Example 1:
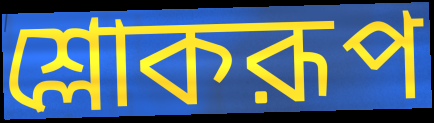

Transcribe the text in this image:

শ্লোকরূপ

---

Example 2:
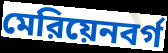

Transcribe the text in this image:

মেরিয়েনবর্গ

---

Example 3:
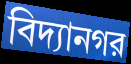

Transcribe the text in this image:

বিদ্যানগর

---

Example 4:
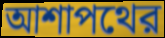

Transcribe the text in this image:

আশাপথের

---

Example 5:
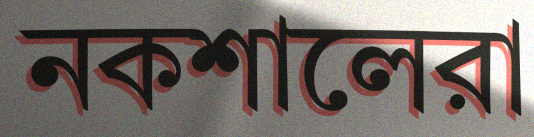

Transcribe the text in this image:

নকশালেরা